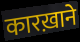
कारख़ाने